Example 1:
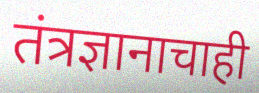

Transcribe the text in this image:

तंत्रज्ञानाचाही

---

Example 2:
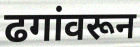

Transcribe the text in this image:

ढगांवरून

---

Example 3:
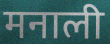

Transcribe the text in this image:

मनाली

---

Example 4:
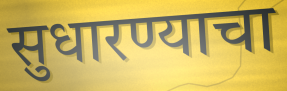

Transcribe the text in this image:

सुधारण्याचा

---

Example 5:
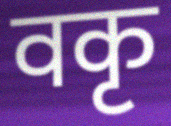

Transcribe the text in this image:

वकृ